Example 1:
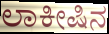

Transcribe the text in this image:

ಲಾಕೀಷಿನ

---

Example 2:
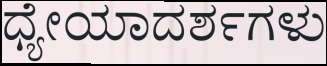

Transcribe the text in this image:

ಧ್ಯೇಯಾದರ್ಶಗಳು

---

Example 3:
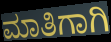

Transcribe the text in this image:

ಮಾತಿಗಾಗಿ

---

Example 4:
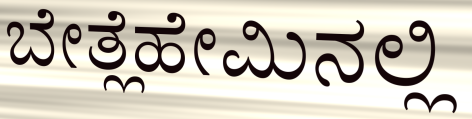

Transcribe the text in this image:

ಬೇತ್ಲೆಹೇಮಿನಲ್ಲಿ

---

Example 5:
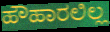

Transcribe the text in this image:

ಹೌಹಾರಲಿಲ್ಲ